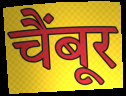
चैंबूर